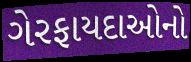
ગેરફાયદાઓનો